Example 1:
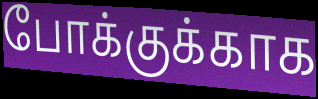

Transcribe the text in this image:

போக்குக்காக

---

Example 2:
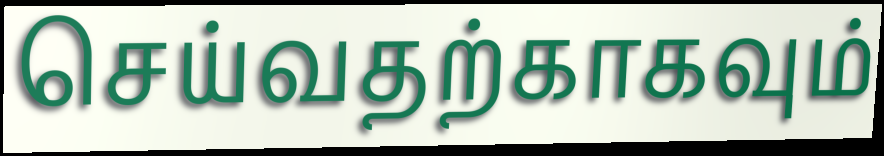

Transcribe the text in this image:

செய்வதற்காகவும்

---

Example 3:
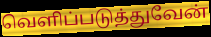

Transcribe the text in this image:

வெளிப்படுத்துவேன்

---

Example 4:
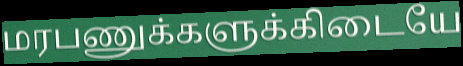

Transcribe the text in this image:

மரபணுக்களுக்கிடையே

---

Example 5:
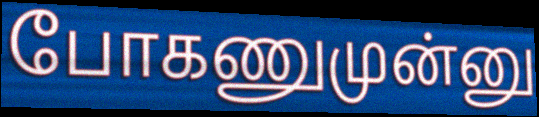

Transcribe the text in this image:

போகணுமுன்னு